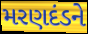
મરણદંડને